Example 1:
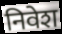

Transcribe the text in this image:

निवेश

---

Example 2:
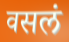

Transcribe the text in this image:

वसलं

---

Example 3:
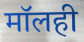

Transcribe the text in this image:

मॉलही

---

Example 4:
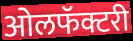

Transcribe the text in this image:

ओलफॅक्टरी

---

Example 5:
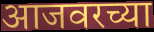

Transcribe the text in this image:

आजवरच्या